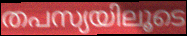
തപസ്യയിലൂടെ